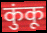
कुंकू